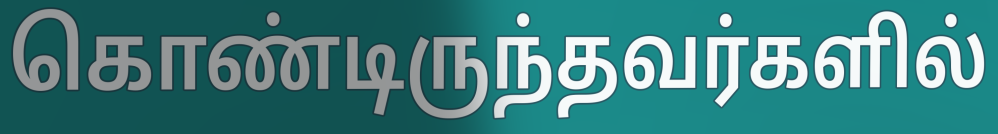
கொண்டிருந்தவர்களில்